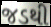
જડથી